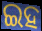
ଇହ